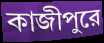
কাজীপুরে